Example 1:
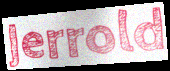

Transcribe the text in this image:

Jerrold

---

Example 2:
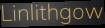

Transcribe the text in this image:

Linlithgow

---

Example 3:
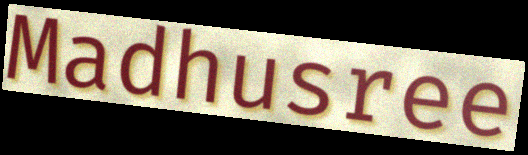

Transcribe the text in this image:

Madhusree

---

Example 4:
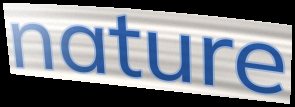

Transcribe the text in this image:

nature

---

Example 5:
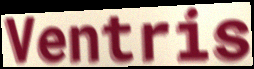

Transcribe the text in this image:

Ventris